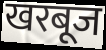
खरबूज